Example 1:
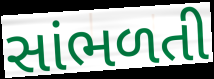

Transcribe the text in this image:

સાંભળતી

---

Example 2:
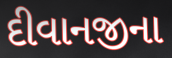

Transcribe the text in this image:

દીવાનજીના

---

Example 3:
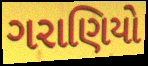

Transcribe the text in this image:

ગરાણિયો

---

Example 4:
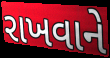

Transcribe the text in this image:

રાખવાને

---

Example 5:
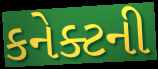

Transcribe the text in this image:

કનેક્ટની